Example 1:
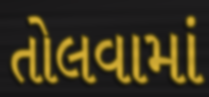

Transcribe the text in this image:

તોલવામાં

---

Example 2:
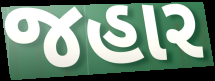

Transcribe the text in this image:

જહાર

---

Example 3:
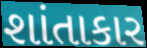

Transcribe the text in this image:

શાંતાકાર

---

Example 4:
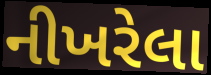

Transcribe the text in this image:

નીખરેલા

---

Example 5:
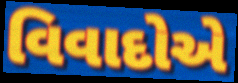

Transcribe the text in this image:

વિવાદોએ